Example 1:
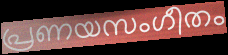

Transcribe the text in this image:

പ്രണയസംഗീതം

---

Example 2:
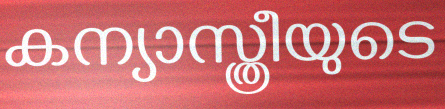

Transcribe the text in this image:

കന്യാസ്ത്രീയുടെ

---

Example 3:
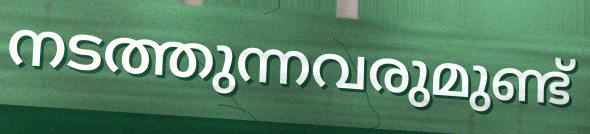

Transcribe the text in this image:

നടത്തുന്നവരുമുണ്ട്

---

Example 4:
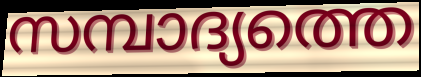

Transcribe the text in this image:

സമ്പാദ്യത്തെ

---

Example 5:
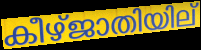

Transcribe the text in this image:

കീഴ്ജാതിയില്